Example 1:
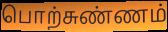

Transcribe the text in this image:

பொற்சுண்ணம்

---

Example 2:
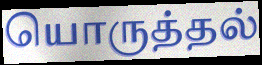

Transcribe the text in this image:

யொருத்தல்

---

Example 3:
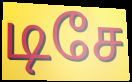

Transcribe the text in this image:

டிசே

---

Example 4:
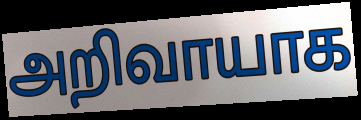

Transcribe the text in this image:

அறிவாயாக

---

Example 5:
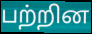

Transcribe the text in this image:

பற்றின